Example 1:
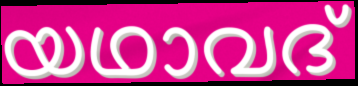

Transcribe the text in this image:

യഥാവദ്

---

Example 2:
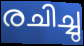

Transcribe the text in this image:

രചിച്ചു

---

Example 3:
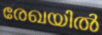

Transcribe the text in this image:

രേഖയിൽ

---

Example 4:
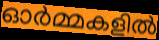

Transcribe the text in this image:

ഓർമ്മകളിൽ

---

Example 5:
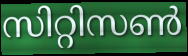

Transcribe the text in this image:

സിറ്റിസൺ